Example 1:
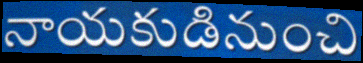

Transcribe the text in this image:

నాయకుడినుంచి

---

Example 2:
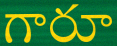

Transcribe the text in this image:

గారూ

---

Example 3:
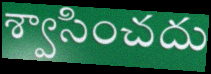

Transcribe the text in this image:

శ్వాసించదు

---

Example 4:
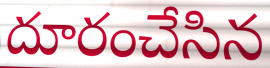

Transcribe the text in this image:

దూరంచేసిన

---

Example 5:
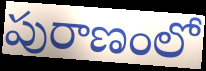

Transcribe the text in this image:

పురాణంలో